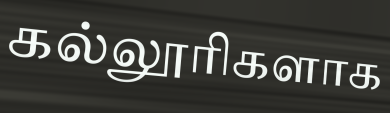
கல்லூரிகளாக